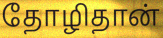
தோழிதான்